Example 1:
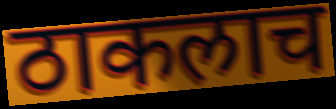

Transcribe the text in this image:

ठाकलाच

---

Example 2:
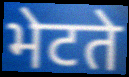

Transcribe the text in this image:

भेटते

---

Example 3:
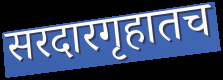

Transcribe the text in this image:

सरदारगृहातच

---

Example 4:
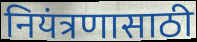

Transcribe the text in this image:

नियंत्रणासाठी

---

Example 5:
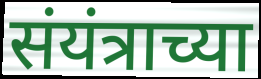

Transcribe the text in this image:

संयंत्राच्या